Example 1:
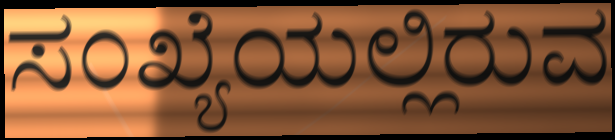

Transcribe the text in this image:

ಸಂಖ್ಯೆಯಲ್ಲಿರುವ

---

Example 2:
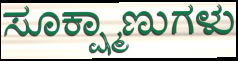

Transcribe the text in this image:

ಸೂಕ್ಷ್ಮಾಣುಗಳು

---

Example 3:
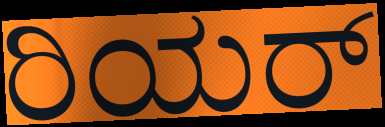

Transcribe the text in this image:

ರಿಯರ್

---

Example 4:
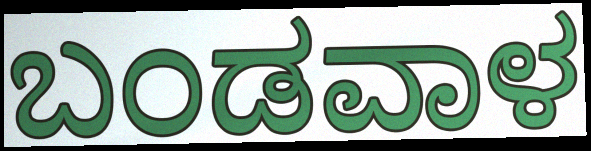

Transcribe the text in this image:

ಬಂಡವಾಳ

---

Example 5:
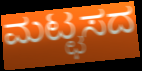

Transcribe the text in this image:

ಮಟ್ಟಸದ